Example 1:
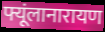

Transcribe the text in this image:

फ्यूंलानारायण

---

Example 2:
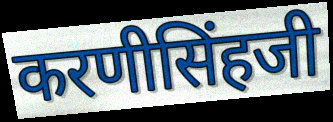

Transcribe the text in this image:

करणीसिंहजी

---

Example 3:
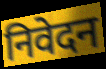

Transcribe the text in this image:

निवेदन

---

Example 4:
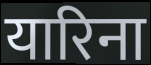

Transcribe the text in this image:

यारिना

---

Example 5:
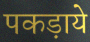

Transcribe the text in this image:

पकड़ाये